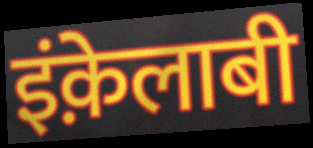
इंक़ेलाबी